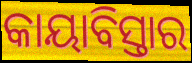
କାୟାବିସ୍ତାର